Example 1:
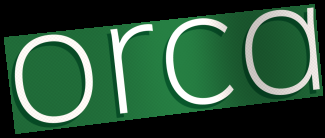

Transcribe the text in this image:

orca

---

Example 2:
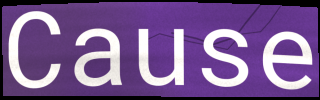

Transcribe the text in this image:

Cause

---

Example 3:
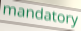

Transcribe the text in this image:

mandatory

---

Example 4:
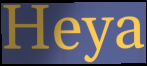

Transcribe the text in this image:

Heya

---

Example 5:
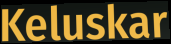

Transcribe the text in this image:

Keluskar